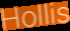
Hollis